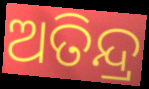
ଅତିନ୍ଦ୍ର